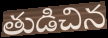
తుడిచిన